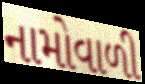
નામોવાળી